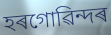
হৰগোৱিন্দৰ